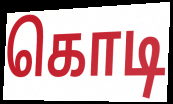
கொடி